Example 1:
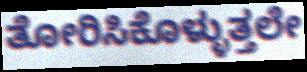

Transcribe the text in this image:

ತೋರಿಸಿಕೊಳ್ಳುತ್ತಲೇ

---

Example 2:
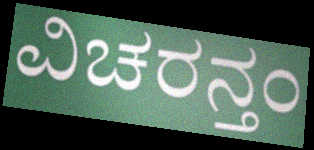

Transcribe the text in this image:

ವಿಚರನ್ತಂ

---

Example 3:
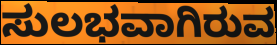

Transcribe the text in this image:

ಸುಲಭವಾಗಿರುವ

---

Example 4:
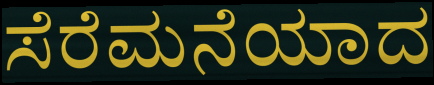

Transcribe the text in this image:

ಸೆರೆಮನೆಯಾದ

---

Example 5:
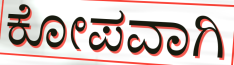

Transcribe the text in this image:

ಕೋಪವಾಗಿ